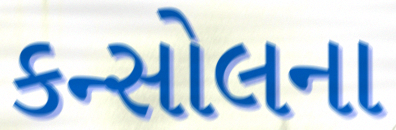
કન્સોલના